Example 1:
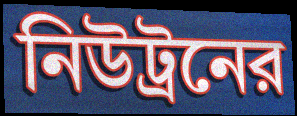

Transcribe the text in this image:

নিউট্রনের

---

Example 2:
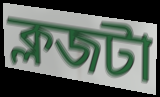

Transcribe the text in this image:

ক্লজটা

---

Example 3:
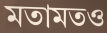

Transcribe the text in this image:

মতামতও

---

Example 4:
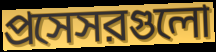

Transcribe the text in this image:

প্রসেসরগুলো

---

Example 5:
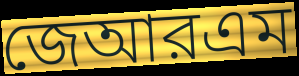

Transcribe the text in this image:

জেআরএম